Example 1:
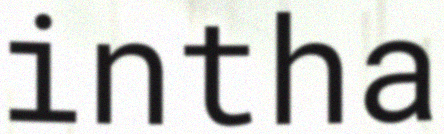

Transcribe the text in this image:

intha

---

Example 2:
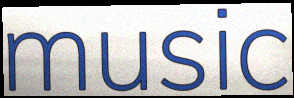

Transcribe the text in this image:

music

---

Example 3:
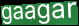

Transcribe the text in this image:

gaagar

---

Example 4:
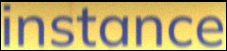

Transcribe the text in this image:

instance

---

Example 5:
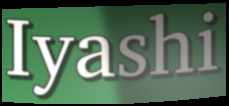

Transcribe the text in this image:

Iyashi